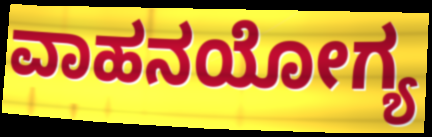
ವಾಹನಯೋಗ್ಯ